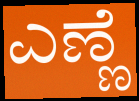
ಎಣ್ಣೆ